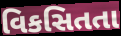
વિકસિતતા